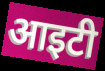
आइटी